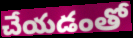
చేయడంతో